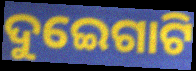
ଦୁଇେଗାଟି